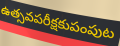
ఉత్సవపరీక్షకుపంపుట